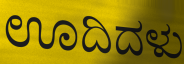
ಊದಿದಳು